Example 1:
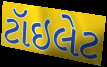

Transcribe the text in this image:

ટૉઇલેટ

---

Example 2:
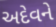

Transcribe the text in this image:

અદેવને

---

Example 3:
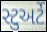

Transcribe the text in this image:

સ્ટુઅર્ટે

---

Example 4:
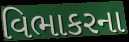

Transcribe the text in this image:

વિભાકરના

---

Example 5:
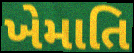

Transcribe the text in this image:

ખેમાતિ